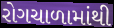
રોગચાળામાંથી